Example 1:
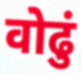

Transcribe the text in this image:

वोढुं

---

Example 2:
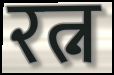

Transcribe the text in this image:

रत्न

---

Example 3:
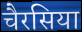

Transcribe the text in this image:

चैरसिया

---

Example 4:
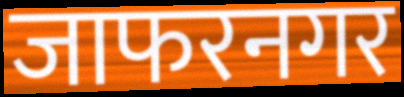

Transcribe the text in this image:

जाफरनगर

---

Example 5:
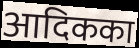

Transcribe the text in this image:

आदिकका